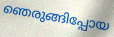
ഞെരുങ്ങിപ്പോയ